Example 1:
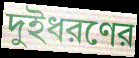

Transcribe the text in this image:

দুইধরণের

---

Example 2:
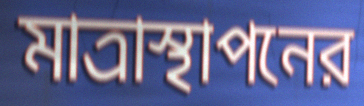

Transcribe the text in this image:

মাত্রাস্থাপনের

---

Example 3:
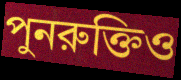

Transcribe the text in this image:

পুনরুক্তিও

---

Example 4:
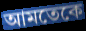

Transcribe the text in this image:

আমতেকে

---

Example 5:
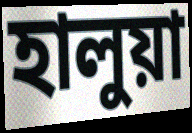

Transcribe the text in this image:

হালুয়া